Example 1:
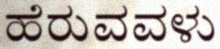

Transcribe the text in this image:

ಹೆರುವವಳು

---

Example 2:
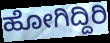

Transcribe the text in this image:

ಹೋಗಿದ್ದಿರಿ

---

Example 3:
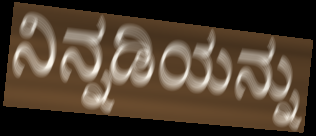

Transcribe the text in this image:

ನಿನ್ನಡಿಯನ್ನು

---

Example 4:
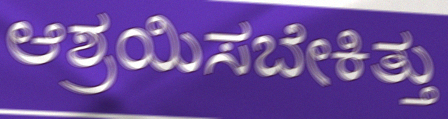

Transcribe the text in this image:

ಆಶ್ರಯಿಸಬೇಕಿತ್ತು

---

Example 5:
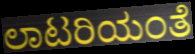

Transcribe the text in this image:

ಲಾಟರಿಯಂತೆ